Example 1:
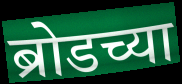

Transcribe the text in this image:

ब्रोडच्या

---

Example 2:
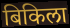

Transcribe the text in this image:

बिकिला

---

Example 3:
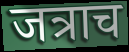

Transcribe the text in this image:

जत्राच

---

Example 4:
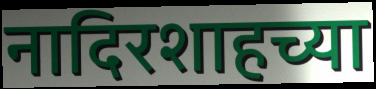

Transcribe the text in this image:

नादिरशाहच्या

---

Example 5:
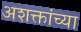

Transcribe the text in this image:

अशक्तांच्या